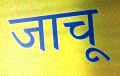
जाचू